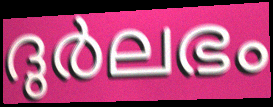
ദുർലഭം